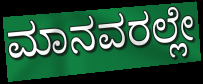
ಮಾನವರಲ್ಲೇ